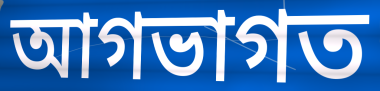
আগভাগত